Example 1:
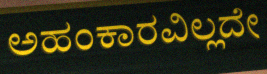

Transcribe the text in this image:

ಅಹಂಕಾರವಿಲ್ಲದೇ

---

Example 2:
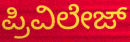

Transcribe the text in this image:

ಪ್ರಿವಿಲೇಜ್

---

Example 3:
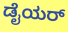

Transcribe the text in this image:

ಡೈಯರ್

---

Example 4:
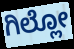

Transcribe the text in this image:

ಗಿಲ್ಲೋ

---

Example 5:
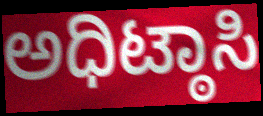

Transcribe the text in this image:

ಅಧಿಟ್ಠಾಸಿ